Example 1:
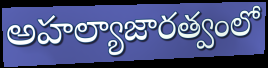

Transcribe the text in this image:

అహల్యాజారత్వంలో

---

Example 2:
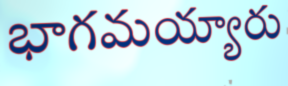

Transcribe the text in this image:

భాగమయ్యారు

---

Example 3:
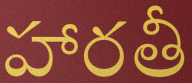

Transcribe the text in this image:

హారతీ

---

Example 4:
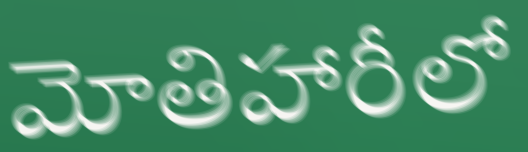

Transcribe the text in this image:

మోతిహారీలో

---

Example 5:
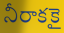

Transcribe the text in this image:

నీరాకకై